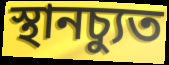
স্থানচ্যুত